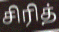
சிரித்